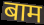
बाम